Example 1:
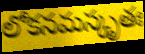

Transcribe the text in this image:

లోకనమస్కృతః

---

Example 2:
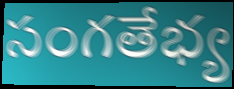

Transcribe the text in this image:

సంగతేభ్య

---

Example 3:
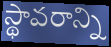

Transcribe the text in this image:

స్థావరాన్ని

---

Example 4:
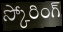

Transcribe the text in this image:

స్కోరింగ్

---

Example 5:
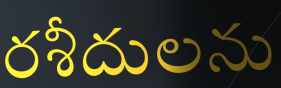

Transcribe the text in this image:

రశీదులను